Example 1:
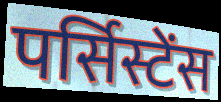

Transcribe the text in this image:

पर्सिस्टेंस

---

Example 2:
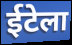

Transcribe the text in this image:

ईटेला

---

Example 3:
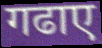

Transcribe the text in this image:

गढाए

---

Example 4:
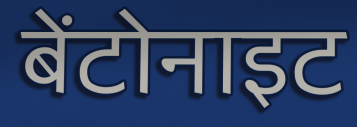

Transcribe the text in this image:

बेंटोनाइट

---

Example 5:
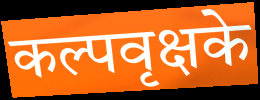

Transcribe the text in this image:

कल्पवृक्षके